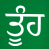
ਤੂੰਹ